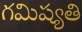
గమిష్యతి